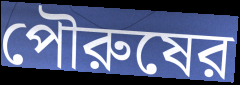
পৌরুষের